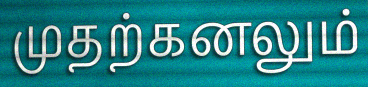
முதற்கனலும்